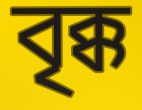
বৃক্ক